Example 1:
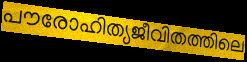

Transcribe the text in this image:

പൗരോഹിത്യജീവിതത്തിലെ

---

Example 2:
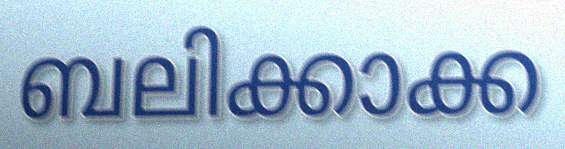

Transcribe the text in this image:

ബലിക്കാക്ക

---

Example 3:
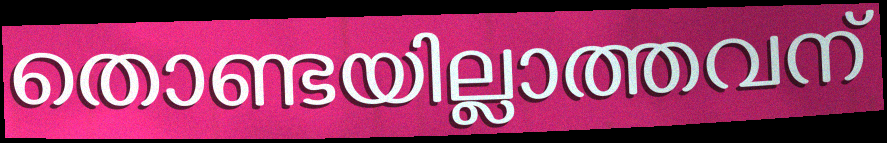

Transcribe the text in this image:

തൊണ്ടയില്ലാത്തവന്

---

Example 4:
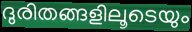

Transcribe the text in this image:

ദുരിതങ്ങളിലൂടെയും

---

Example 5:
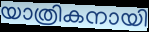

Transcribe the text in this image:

യാത്രികനായി